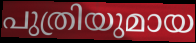
പുത്രിയുമായ